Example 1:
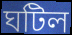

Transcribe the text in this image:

ঘটিল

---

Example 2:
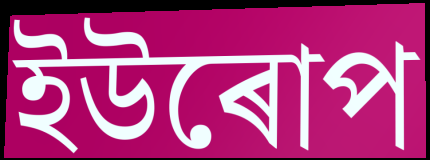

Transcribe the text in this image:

ইউৰোপ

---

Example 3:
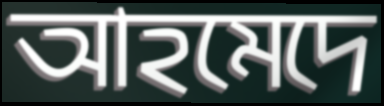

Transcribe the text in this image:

আহমেদে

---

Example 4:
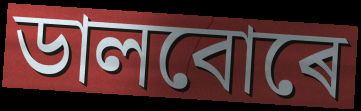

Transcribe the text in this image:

ডালবোৰে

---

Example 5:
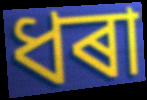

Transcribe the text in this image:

ধৰা